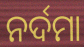
ନର୍ଦମା